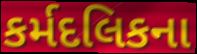
કર્મદલિકના